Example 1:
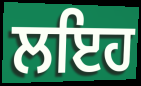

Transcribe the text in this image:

ਲਇਹ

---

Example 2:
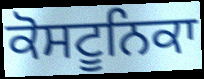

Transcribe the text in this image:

ਕੋਸਟੂਨਿਕਾ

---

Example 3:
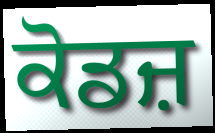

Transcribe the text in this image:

ਕੋਡਜ਼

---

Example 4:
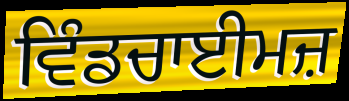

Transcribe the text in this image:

ਵਿੰਡਚਾਈਮਜ਼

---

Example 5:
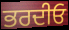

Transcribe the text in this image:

ਭਰਦੀਓ